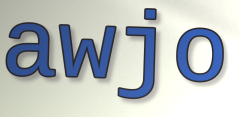
awjo